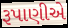
રૂપાણીએ